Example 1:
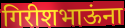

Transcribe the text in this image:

गिरीशभाऊंना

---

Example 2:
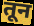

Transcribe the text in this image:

तून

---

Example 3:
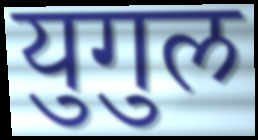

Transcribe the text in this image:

युगुल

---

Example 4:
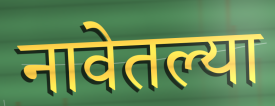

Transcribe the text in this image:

नावेतल्या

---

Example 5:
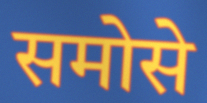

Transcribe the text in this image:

समोसे